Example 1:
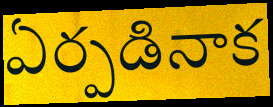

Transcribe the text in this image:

ఏర్పడినాక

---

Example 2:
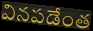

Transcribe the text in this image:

వినపడేంత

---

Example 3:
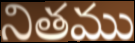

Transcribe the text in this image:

నితము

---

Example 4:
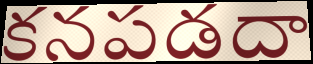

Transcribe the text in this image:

కనపడదా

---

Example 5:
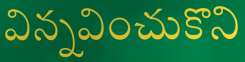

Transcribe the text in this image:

విన్నవించుకొని